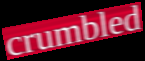
crumbled